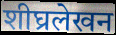
शीघ्रलेखन